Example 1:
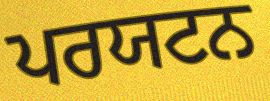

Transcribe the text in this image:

ਪਰਯਟਨ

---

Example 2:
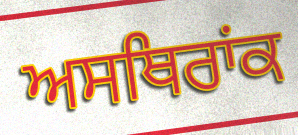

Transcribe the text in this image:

ਅਸਥਿਰਾਂਕ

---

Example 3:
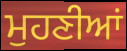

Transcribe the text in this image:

ਮੁਹਣੀਆਂ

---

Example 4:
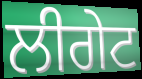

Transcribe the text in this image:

ਲੀਗੇਟ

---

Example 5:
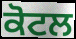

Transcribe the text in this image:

ਕੋਟਲ